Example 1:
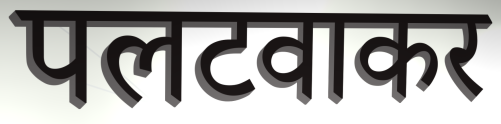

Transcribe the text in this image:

पलटवाकर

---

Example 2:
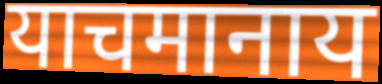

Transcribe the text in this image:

याचमानाय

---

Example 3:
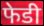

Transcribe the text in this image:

फेडी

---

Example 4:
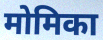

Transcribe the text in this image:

मोमिका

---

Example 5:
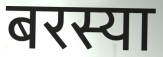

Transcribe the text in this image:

बरस्या